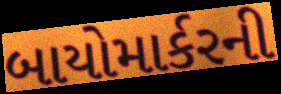
બાયોમાર્કરની